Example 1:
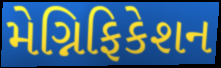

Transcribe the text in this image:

મેગ્નિફિકેશન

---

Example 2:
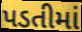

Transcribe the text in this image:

પડતીમાં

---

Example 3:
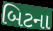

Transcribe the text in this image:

બિટના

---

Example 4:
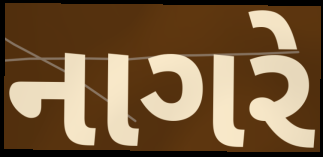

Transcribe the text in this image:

નાગરે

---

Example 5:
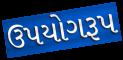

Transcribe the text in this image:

ઉપયોગરૂપ